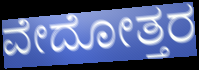
ವೇದೋತ್ತರ